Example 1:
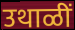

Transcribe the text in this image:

उथाळीं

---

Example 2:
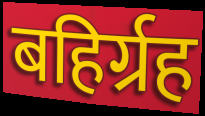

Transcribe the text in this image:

बहिर्ग्रह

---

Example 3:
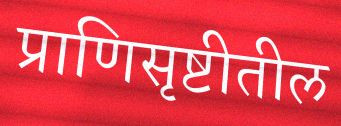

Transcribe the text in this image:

प्राणिसृष्टीतील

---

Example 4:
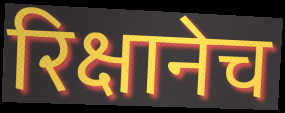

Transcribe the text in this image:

रिक्षानेच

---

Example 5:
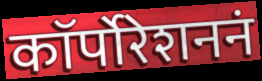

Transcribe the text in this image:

कॉर्पोरेशननं